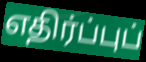
எதிர்ப்புப்